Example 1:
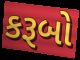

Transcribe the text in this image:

કરૂબો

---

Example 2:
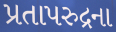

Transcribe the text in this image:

પ્રતાપરુદ્રના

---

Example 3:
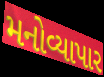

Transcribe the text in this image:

મનોવ્યાપાર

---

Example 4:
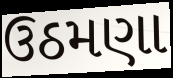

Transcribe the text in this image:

ઉઠમણા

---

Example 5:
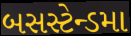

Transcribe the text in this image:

બસસ્ટેન્ડમા